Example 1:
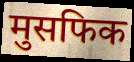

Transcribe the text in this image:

मुसफिक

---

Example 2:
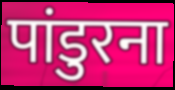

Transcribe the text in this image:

पांडुरना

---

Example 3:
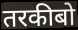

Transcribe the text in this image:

तरकीबो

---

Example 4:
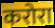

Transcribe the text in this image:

करोरा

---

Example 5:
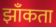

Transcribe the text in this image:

झाँकता